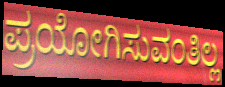
ಪ್ರಯೋಗಿಸುವಂತಿಲ್ಲ